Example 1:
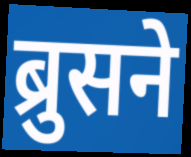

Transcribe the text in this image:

ब्रुसने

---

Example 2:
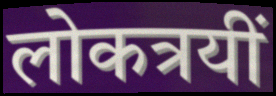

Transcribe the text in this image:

लोकत्रयीं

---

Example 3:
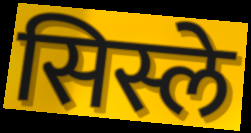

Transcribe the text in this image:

सिस्ले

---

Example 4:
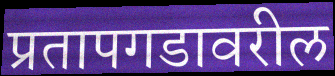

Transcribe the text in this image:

प्रतापगडावरील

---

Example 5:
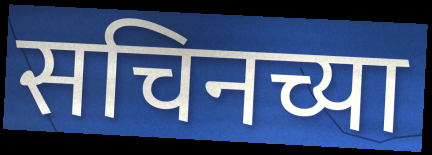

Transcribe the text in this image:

सचिनच्या